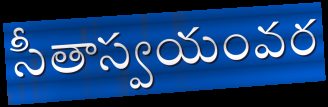
సీతాస్వయంవర